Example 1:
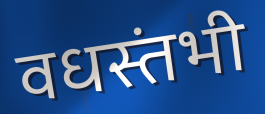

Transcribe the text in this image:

वधस्तंभी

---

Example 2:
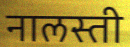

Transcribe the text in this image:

नालस्ती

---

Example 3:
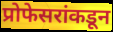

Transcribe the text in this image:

प्रोफेसरांकडून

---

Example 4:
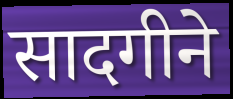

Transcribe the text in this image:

सादगीने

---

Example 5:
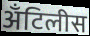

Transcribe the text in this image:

अँटिलीस